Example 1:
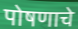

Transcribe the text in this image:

पोषणाचे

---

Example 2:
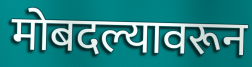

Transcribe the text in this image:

मोबदल्यावरून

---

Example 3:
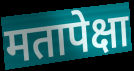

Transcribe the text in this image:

मतापेक्षा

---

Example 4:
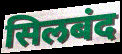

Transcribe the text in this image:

सिलबंद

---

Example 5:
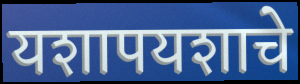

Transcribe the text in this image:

यशापयशाचे